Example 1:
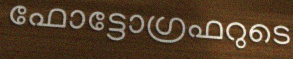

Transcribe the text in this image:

ഫോട്ടോഗ്രഫറുടെ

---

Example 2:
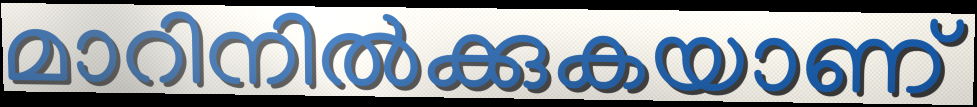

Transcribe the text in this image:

മാറിനിൽക്കുകയാണ്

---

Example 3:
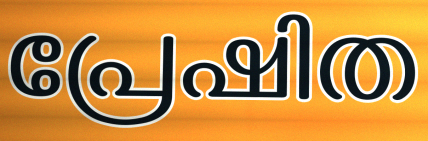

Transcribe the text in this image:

പ്രേഷിത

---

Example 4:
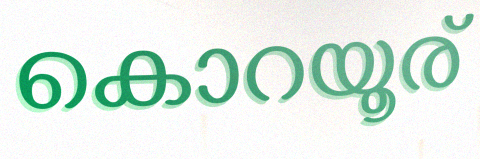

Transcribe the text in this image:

കൊറയൂര്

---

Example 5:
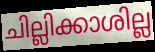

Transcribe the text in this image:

ചില്ലിക്കാശില്ല